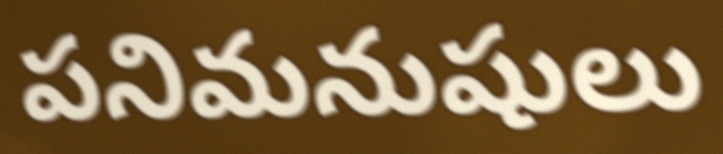
పనిమనుషులు